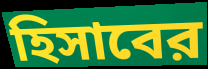
হিসাবের